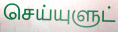
செய்யுளுட்